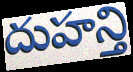
దుహన్తి